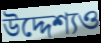
উদ্দেশ্যও